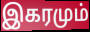
இகரமும்